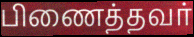
பிணைத்தவர்